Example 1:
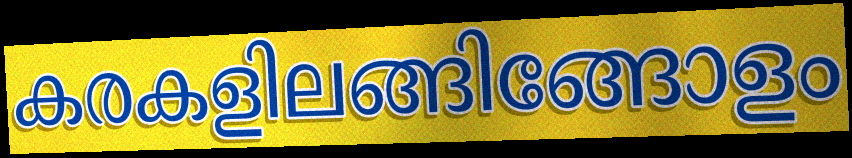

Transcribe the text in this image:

കരകളിലങ്ങിങ്ങോളം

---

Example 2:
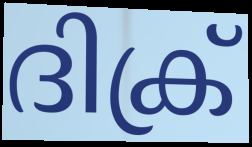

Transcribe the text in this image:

ദിക്ര്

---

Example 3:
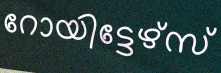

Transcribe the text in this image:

റോയിട്ടേഴ്സ്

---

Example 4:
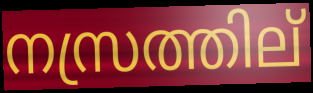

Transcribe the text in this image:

നസ്രത്തില്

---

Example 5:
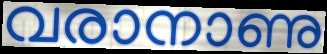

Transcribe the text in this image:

വരാനാണു